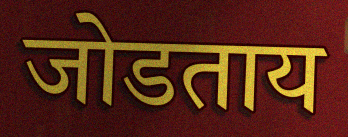
जोडताय